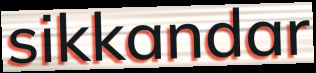
sikkandar